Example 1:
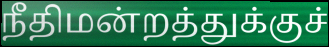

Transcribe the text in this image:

நீதிமன்றத்துக்குச்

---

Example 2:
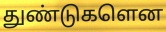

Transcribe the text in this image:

துண்டுகளென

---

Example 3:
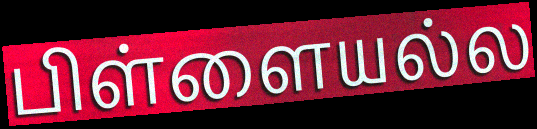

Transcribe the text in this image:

பிள்ளையல்ல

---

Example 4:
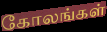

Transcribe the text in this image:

கோலங்கள்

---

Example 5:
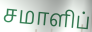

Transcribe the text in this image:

சமாளிப்